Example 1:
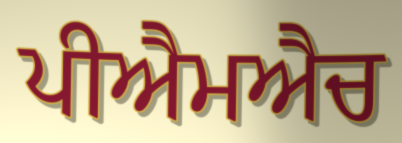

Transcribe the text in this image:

ਪੀਐਮਐਚ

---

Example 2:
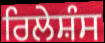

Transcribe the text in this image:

ਰਿਲੇਸ਼ੰਸ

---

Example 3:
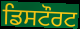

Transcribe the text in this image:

ਡਿਸਟੌਰਟ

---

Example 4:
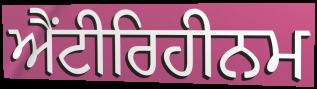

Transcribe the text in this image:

ਐਂਟੀਰਿਹੀਨਮ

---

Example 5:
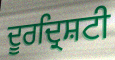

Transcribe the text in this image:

ਦੂਰਦ੍ਰਿਸ਼ਟੀ